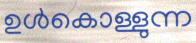
ഉൾകൊള്ളുന്ന